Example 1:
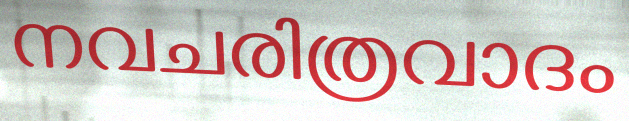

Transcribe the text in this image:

നവചരിത്രവാദം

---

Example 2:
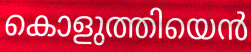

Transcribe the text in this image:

കൊളുത്തിയെൻ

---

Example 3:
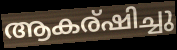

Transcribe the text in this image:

ആകര്ഷിച്ചു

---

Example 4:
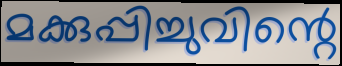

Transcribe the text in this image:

മക്കുപ്പിച്ചുവിന്റെ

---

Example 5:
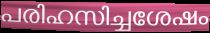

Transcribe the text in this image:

പരിഹസിച്ചശേഷം